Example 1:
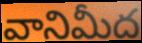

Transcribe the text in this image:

వానిమీద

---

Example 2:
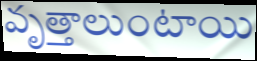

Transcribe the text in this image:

వృత్తాలుంటాయి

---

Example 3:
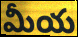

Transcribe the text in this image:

మీయ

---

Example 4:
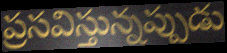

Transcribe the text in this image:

ప్రసవిస్తున్నప్పుడు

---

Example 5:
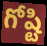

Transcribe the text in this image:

గోష్టి